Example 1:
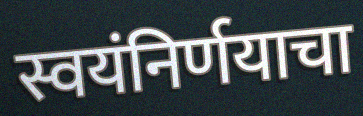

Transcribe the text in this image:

स्वयंनिर्णयाचा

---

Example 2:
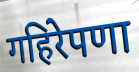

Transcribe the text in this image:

गहिरेपणा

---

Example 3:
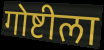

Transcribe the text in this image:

गोष्टीला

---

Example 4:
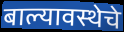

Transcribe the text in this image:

बाल्यावस्थेचे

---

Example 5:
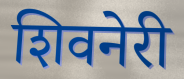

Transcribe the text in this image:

शिवनेरी